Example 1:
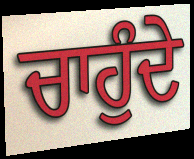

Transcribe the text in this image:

ਚਾਹੁੰਦੇ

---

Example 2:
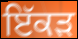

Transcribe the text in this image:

ਇੱਕੜ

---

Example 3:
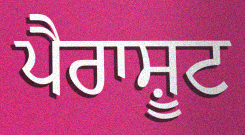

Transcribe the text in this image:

ਪੈਰਾਸ਼ੂਟ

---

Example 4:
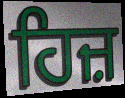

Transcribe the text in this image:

ਹਿਜ਼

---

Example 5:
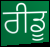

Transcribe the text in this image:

ਰੀਡੂ